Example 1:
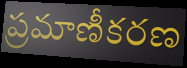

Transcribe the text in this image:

ప్రమాణీకరణ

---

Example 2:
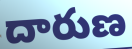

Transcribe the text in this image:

దారుణ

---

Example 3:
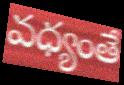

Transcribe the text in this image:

వధ్యంతే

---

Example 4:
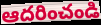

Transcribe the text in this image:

ఆదరించండి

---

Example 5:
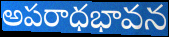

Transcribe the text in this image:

అపరాధభావన